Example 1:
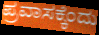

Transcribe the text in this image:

ಪ್ರವಾಸಕ್ಕೆಂದು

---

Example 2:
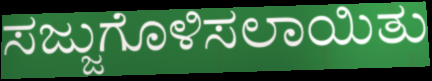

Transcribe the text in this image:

ಸಜ್ಜುಗೊಳಿಸಲಾಯಿತು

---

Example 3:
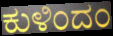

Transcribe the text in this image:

ಕುಳಿಂದಂ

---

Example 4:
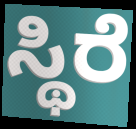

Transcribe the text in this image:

ಸ್ಥಿರೆ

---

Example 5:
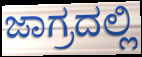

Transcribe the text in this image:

ಜಾಗ್ರದಲ್ಲಿ